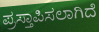
ಪ್ರಸ್ತಾಪಿಸಲಾಗಿದೆ